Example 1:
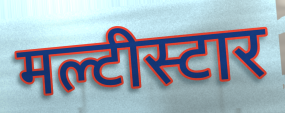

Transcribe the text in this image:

मल्टीस्टार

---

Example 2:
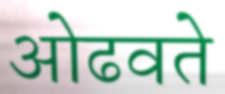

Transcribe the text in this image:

ओढवते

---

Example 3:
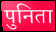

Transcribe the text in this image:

पुनिता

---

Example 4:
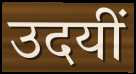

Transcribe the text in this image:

उदयीं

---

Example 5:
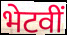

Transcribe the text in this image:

भेटवीं